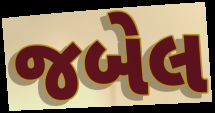
જબેલ